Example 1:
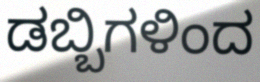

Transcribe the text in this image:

ಡಬ್ಬಿಗಳಿಂದ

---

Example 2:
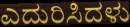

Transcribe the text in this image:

ಎದುರಿಸಿದಳು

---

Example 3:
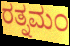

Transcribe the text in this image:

ರತ್ನಮಂ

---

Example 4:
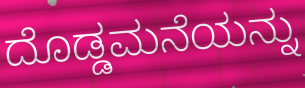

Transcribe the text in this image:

ದೊಡ್ಡಮನೆಯನ್ನು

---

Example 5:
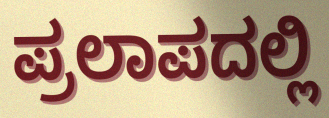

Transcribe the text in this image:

ಪ್ರಲಾಪದಲ್ಲಿ